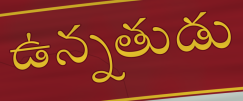
ఉన్నతుడు